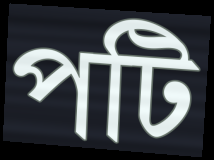
পটি